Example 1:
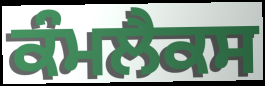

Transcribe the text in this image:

ਕੰਮਲੈਕਸ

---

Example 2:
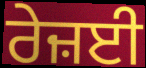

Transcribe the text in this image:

ਰੇਜ਼ਈ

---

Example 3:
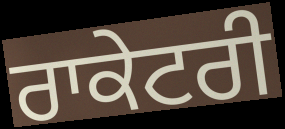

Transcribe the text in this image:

ਰਾਕੇਟਰੀ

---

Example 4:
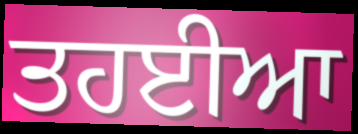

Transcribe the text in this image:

ਤਹਈਆ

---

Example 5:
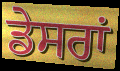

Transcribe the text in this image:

ਡੇਸਰਾਂ